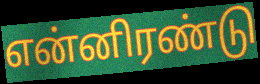
என்னிரண்டு